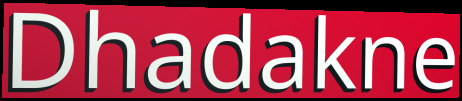
Dhadakne